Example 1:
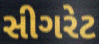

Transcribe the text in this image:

સીગરેટ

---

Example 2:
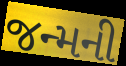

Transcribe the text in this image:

જન્મની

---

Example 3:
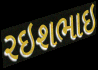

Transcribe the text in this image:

રઇશભાઇ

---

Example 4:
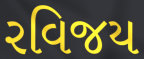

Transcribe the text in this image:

રવિજય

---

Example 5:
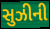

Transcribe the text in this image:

સુઝીની